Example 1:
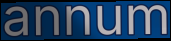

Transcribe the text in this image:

annum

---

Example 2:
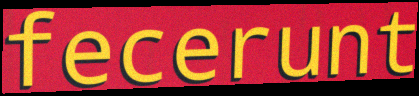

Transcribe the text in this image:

fecerunt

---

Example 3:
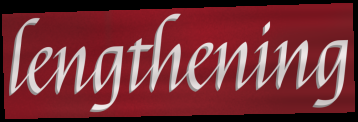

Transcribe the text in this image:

lengthening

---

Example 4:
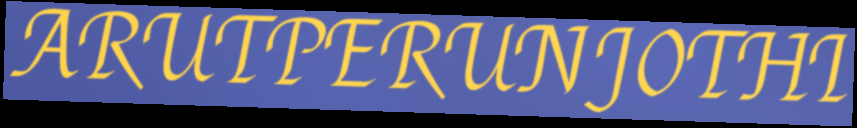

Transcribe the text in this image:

ARUTPERUNJOTHI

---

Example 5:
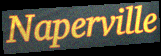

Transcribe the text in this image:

Naperville